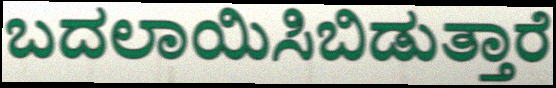
ಬದಲಾಯಿಸಿಬಿಡುತ್ತಾರೆ